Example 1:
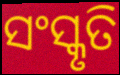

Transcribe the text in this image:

ସଂସ୍କୃତି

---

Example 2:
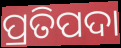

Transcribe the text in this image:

ପ୍ରତିପଦା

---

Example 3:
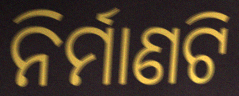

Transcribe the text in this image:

ନିର୍ମାଣଟି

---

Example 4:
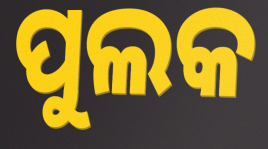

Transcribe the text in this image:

ପୁଲକ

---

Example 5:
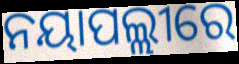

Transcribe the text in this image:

ନୟାପଲ୍ଲୀରେ